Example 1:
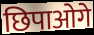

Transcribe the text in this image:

छिपाओगे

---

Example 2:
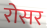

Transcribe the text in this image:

रोसर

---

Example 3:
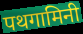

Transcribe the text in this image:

पथगामिनी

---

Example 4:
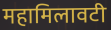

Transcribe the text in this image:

महामिलावटी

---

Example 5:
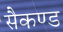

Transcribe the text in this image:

सैकण्ड